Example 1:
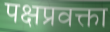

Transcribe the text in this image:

पक्षप्रवक्ता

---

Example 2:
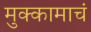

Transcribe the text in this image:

मुक्कामाचं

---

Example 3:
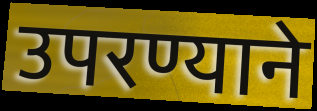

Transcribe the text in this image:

उपरण्याने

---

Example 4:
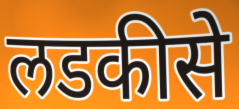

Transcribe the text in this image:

लडकीसे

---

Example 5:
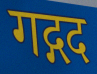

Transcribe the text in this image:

गद्गद